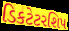
ડિકટેટરશિપ